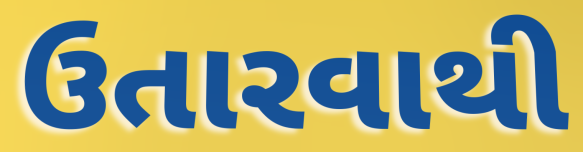
ઉતારવાથી